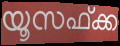
യൂസഫ്ക്ക